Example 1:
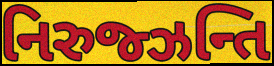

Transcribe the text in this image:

નિરુજ્ઝન્તિ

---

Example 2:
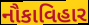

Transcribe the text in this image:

નૌકાવિહાર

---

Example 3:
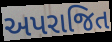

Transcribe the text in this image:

અપરાજિત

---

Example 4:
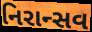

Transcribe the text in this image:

નિરાન્સવ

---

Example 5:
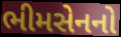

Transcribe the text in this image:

ભીમસેનનો